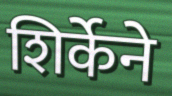
शिर्केने